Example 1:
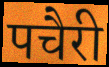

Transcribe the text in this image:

पचैरी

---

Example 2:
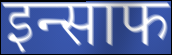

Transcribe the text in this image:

इन्साफ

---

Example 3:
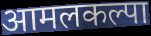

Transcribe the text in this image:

आमलकल्पा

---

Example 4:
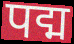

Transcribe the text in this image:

पद्म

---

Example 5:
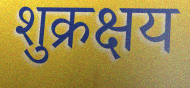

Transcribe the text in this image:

शुक्रक्षय